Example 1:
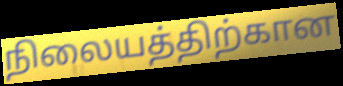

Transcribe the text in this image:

நிலையத்திற்கான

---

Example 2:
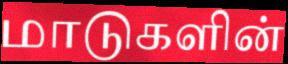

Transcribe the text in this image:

மாடுகளின்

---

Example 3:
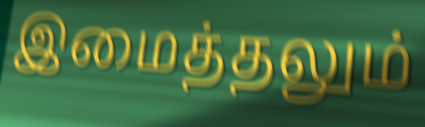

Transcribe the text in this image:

இமைத்தலும்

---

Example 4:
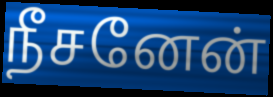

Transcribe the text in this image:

நீசனேன்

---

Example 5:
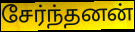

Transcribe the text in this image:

சேர்ந்தனன்